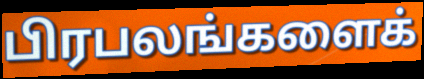
பிரபலங்களைக்